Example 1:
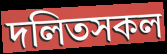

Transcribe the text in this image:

দলিতসকল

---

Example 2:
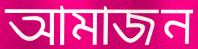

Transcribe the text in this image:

আমাজন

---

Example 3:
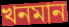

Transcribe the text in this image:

খনমান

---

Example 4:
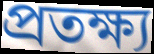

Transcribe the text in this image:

প্ৰতক্ষ্য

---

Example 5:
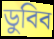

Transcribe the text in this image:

ডুবিব